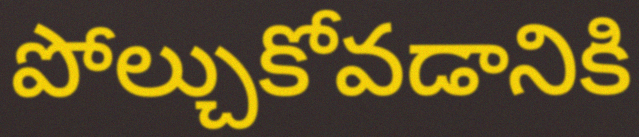
పోల్చుకోవడానికి